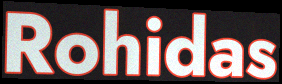
Rohidas